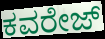
ಕವರೇಜ್